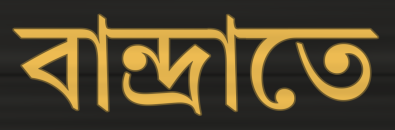
বান্দ্রাতে